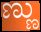
ಣ್ಣು